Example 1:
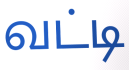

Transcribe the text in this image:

வட்டி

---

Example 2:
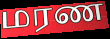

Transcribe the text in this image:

மரண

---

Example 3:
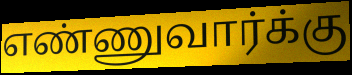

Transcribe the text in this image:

எண்ணுவார்க்கு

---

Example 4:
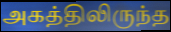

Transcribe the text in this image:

அகத்திலிருந்த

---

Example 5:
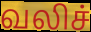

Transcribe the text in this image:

வலிச்